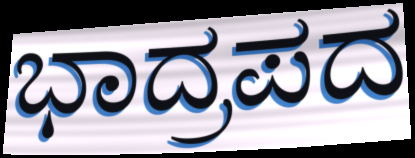
ಭಾದ್ರಪದ